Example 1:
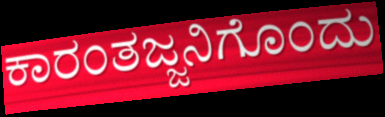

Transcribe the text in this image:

ಕಾರಂತಜ್ಜನಿಗೊಂದು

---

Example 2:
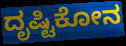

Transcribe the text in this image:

ದೃಷ್ಟಿಕೋನ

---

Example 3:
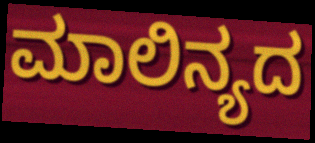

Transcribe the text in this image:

ಮಾಲಿನ್ಯದ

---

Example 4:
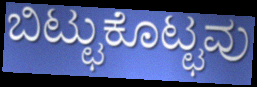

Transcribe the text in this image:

ಬಿಟ್ಟುಕೊಟ್ಟವು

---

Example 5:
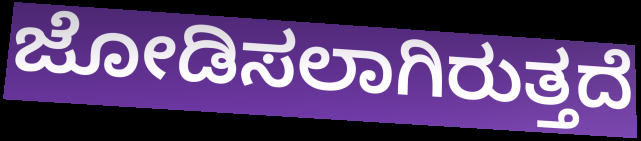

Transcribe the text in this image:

ಜೋಡಿಸಲಾಗಿರುತ್ತದೆ